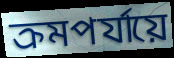
ক্রমপর্যায়ে